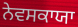
ਨੇਵਸਕਾਯਾ